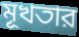
মূখতার